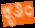
ಕೃತಿಂ